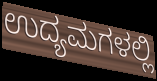
ಉದ್ಯಮಗಳಲ್ಲಿ